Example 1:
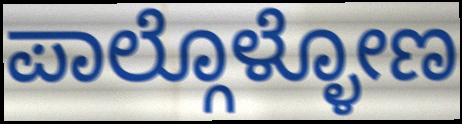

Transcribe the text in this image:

ಪಾಲ್ಗೊಳ್ಳೋಣ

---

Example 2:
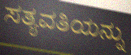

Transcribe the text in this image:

ಸತ್ಯವತಿಯನ್ನು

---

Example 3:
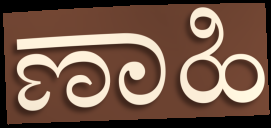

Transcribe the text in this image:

ಣಾಹಿ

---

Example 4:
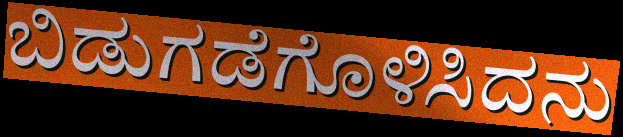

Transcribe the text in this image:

ಬಿಡುಗಡೆಗೊಳಿಸಿದನು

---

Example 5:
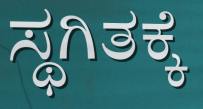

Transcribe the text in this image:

ಸ್ಥಗಿತಕ್ಕೆ